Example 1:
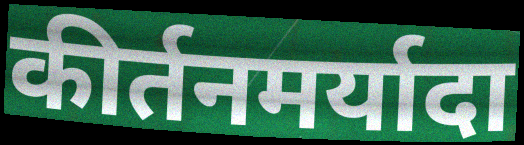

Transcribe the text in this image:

कीर्तनमर्यादा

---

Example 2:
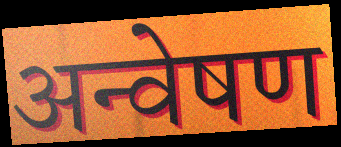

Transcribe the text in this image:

अन्वेषण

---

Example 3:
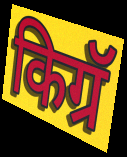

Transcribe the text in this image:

किग्रॅ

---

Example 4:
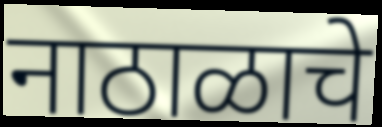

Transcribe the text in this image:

नाठाळाचे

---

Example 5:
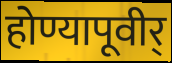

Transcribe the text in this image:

होण्यापूवीर्